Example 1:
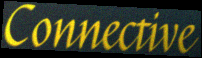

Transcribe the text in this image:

Connective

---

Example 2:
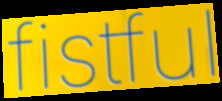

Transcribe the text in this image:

fistful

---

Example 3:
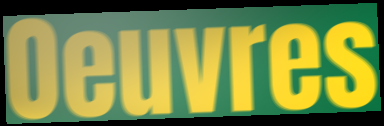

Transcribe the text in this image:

Oeuvres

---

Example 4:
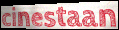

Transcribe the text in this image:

cinestaan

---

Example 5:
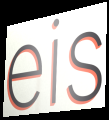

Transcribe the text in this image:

eis